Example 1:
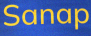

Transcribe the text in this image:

Sanap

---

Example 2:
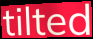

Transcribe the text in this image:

tilted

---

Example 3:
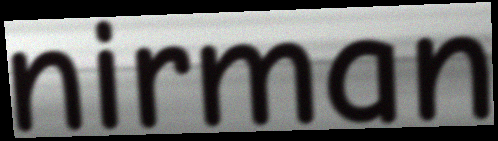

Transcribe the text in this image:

nirman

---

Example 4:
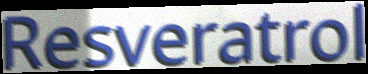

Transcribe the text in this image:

Resveratrol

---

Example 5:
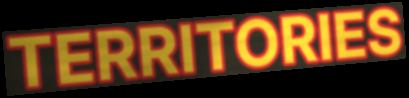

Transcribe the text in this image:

TERRITORIES